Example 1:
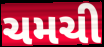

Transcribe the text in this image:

ચમચી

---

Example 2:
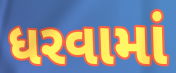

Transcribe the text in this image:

ધરવામાં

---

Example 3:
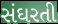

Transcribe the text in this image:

સંઘરતી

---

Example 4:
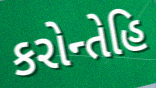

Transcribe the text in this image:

કરોન્તેહિ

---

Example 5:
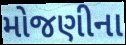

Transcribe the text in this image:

મોજણીના